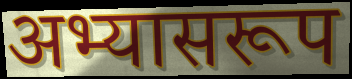
अभ्यासरूप